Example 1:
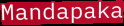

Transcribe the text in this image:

Mandapaka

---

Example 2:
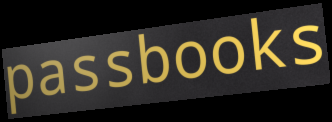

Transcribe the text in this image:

passbooks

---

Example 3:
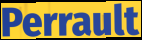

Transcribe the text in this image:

Perrault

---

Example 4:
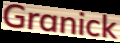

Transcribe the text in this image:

Granick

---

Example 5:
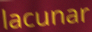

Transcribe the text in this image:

lacunar